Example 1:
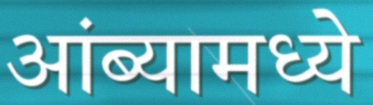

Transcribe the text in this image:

आंब्यामध्ये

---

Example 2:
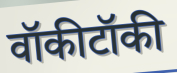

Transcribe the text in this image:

वॉकीटॉकी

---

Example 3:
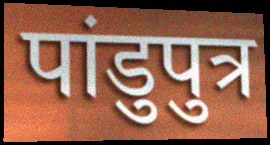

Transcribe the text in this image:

पांडुपुत्र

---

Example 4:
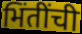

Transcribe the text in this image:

भिंतींची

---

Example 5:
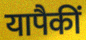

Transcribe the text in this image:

यापैकीं